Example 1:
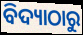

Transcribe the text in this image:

ବିଦ୍ୟାଠାରୁ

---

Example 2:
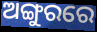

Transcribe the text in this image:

ଅଙ୍ଗୁରରେ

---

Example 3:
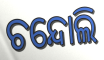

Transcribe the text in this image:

ଚନ୍ଦୋଲି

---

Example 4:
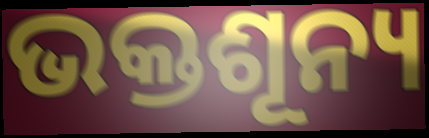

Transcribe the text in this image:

ଭକ୍ତଶୂନ୍ୟ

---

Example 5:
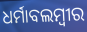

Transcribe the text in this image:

ଧର୍ମାବଲମ୍ବୀର